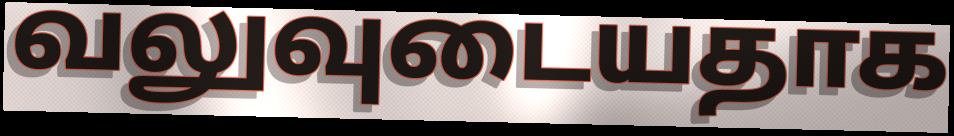
வலுவுடையதாக